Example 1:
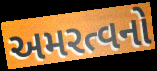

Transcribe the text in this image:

અમરત્વનો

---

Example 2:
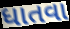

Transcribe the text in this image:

ધાતવા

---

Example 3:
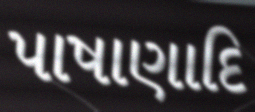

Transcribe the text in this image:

પાષાણાદિ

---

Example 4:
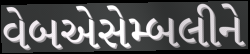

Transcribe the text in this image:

વેબએસેમ્બલીને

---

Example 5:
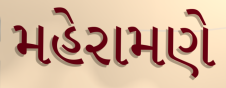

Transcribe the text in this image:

મહેરામણે